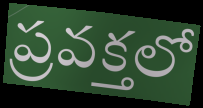
ప్రవక్తలో